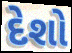
દેશો